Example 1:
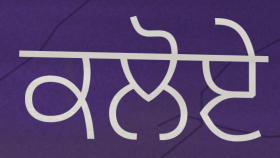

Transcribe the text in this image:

ਕਲੋਏ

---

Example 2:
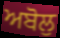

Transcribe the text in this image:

ਅਬੋਲੁ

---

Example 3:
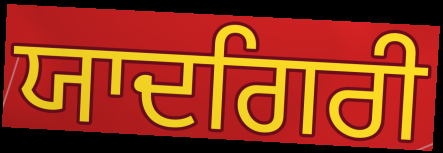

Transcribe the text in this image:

ਯਾਦਗਿਰੀ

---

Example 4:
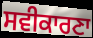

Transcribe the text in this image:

ਸਵੀਕਾਰਣਾ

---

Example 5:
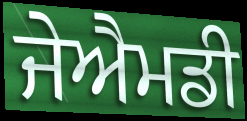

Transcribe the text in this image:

ਜੇਐਮਡੀ